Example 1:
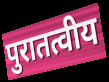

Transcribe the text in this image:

पुरातत्वीय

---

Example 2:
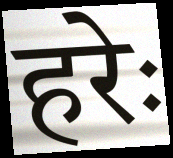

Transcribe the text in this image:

हरेः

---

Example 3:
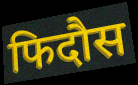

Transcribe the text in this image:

फिदौस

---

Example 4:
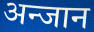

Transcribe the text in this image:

अन्जान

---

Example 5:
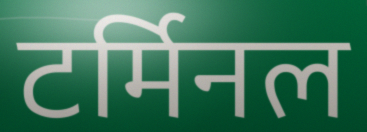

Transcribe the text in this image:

टर्मिनल